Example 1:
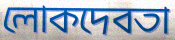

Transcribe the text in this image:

লোকদেবতা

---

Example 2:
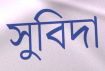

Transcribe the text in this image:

সুবিদা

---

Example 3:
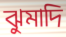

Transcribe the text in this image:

ঝুমাদি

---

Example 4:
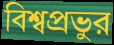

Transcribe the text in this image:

বিশ্বপ্রভুর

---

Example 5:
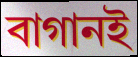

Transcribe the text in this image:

বাগানই